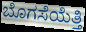
ಬೊಗಸೆಯೆತ್ತಿ